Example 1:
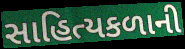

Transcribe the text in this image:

સાહિત્યકળાની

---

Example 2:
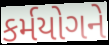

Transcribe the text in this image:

કર્મયોગને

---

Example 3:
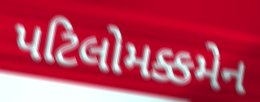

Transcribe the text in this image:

પટિલોમક્કમેન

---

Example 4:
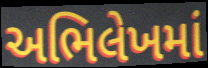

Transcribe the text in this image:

અભિલેખમાં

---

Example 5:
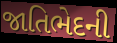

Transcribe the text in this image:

જાતિભેદની